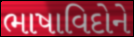
ભાષાવિદોને